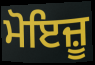
ਮੋਇਜ਼ੂ